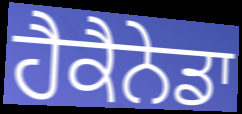
ਹੈਕੈਨੇਡਾ